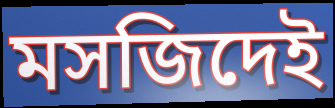
মসজিদেই